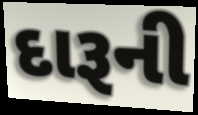
દારૂની